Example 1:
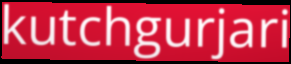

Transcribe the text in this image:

kutchgurjari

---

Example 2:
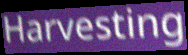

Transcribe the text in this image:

Harvesting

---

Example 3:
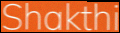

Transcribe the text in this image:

Shakthi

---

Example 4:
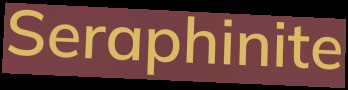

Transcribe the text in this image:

Seraphinite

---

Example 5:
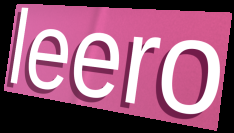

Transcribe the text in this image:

leero